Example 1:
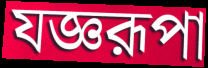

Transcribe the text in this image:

যজ্ঞরূপা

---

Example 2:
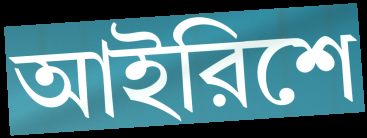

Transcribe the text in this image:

আইরিশে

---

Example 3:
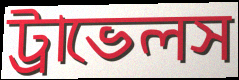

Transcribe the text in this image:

ট্রাভেলস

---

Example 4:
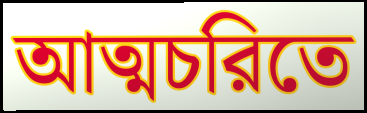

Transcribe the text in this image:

আত্মচরিতে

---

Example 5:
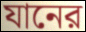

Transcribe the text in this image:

যানের